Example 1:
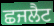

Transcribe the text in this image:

ਛਜਲੈਟ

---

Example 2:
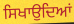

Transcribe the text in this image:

ਸਿਖਾਉਦਿਆਂ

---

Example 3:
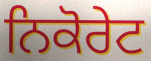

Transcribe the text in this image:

ਨਿਕੋਰੇਟ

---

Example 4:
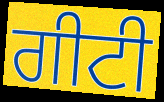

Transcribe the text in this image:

ਗੀਟੀ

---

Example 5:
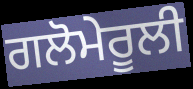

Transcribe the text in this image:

ਗਲੋਮੇਰੂਲੀ